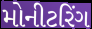
મોનીટરિંગ